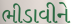
ભીડાવીને